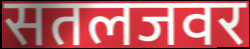
सतलजवर